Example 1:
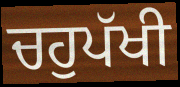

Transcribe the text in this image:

ਚਹੁਪੱਖੀ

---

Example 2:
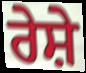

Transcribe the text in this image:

ਰੇਸ਼ੇ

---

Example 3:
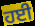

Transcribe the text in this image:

ਹਈ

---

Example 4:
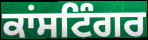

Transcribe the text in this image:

ਕਾਂਸਟਿੰਗਰ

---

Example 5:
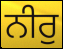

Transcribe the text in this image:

ਨੀਰੁ